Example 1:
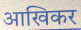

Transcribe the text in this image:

आखिकर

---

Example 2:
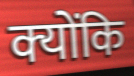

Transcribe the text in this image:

क्‍योंकि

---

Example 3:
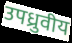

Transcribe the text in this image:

उपध्रुवीय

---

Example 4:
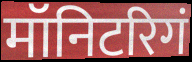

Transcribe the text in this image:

मॉनिटरिगं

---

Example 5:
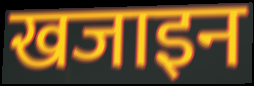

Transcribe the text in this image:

खजाइन